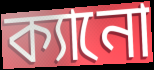
ক্যানো